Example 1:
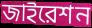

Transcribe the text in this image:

জাইরেশন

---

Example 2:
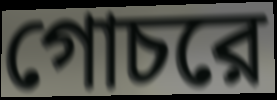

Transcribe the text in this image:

গোচরে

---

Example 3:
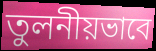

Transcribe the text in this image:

তুলনীয়ভাবে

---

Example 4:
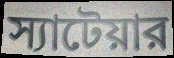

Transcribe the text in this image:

স্যাটেয়ার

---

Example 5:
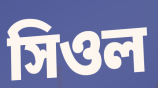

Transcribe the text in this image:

সিওল